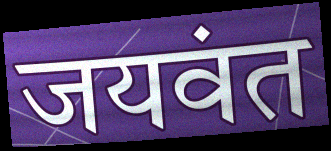
जयवंत